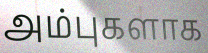
அம்புகளாக